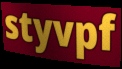
styvpf